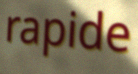
rapide